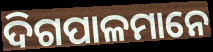
ଦିଗପାଳମାନେ